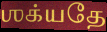
ஶக்யதே